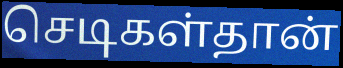
செடிகள்தான்